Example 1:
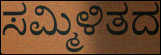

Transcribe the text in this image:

ಸಮ್ಮಿಳಿತದ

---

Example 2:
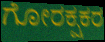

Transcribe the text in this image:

ಗೋರಕ್ಷಕರ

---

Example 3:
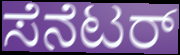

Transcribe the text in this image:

ಸೆನೆಟರ್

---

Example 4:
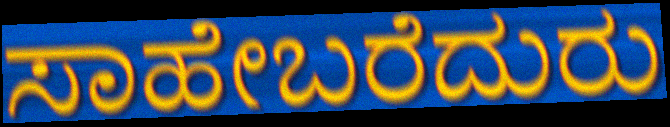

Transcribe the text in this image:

ಸಾಹೇಬರೆದುರು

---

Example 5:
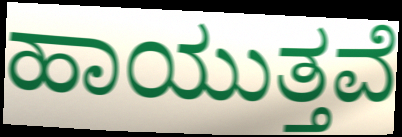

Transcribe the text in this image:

ಹಾಯುತ್ತವೆ